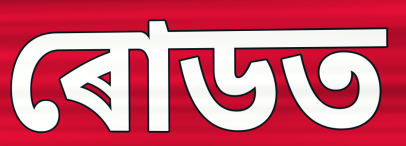
ৰোডত